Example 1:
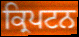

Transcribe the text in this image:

ਕ੍ਰਿਪਟਨ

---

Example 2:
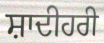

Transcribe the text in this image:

ਸ਼ਾਦੀਹਰੀ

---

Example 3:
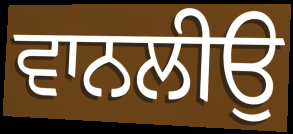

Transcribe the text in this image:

ਵਾਨਲੀਉ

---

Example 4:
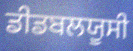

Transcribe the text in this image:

ਡੀਡਬਲਯੂਸੀ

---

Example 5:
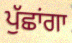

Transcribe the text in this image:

ਪੁੱਛਾਂਗਾ